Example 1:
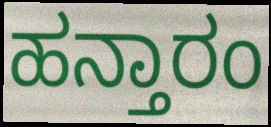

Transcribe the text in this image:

ಹನ್ತಾರಂ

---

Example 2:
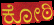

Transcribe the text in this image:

ಕೋಠಿ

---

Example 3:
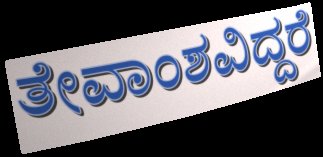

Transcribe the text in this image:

ತೇವಾಂಶವಿದ್ದರೆ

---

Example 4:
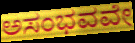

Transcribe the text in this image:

ಅಸಂಭವವೇ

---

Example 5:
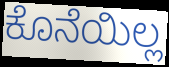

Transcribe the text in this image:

ಕೊನೆಯಿಲ್ಲ